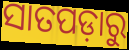
ସାତପଡ଼ାରୁ